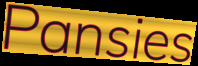
Pansies